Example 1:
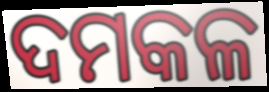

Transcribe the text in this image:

ଦମକଳ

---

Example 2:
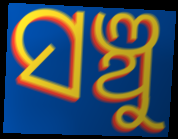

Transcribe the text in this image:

ସଞ୍ଚୁ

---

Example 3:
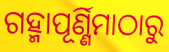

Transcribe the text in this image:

ଗହ୍ମାପୂର୍ଣ୍ଣିମାଠାରୁ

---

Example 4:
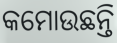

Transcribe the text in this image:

କମୋଉଛନ୍ତି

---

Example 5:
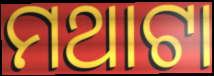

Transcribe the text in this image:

ମଥାଟା